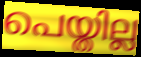
പെയ്തില്ല